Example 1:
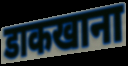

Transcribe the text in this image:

डाकखाना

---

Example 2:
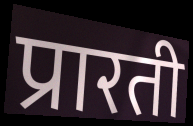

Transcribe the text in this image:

प्रारती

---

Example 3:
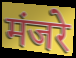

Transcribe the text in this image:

मंजरे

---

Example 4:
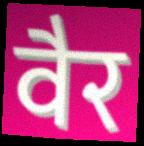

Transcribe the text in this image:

वैर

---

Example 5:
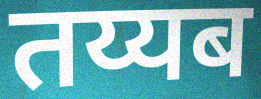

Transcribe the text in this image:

तय्यब